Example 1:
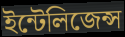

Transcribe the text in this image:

ইন্টেলিজেন্স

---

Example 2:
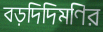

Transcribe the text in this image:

বড়দিদিমণির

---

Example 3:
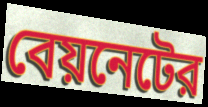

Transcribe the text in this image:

বেয়নেটের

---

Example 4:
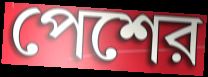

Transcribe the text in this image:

পেশের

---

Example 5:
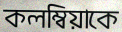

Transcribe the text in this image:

কলম্বিয়াকে